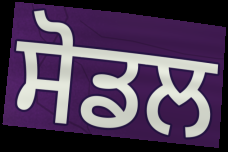
ਸੋਡਲ